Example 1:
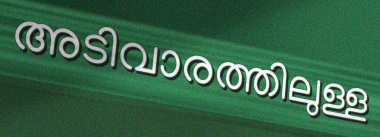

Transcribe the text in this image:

അടിവാരത്തിലുള്ള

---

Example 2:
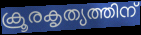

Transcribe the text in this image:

ക്രൂരകൃത്യത്തിന്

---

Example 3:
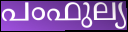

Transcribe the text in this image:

പംഫുല്യ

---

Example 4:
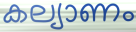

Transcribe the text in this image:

കല്യാണം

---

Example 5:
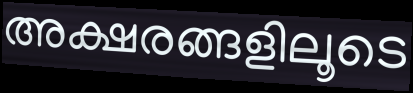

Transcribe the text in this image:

അക്ഷരങ്ങളിലൂടെ